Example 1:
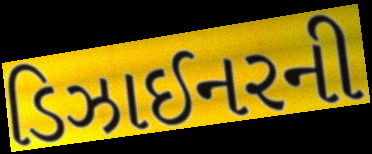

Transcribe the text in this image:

ડિઝાઈનરની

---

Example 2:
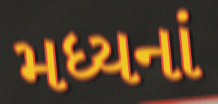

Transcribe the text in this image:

મધ્યનાં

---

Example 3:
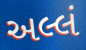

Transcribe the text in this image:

અલ્લં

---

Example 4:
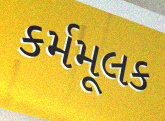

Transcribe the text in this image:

કર્મમૂલક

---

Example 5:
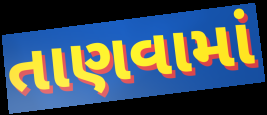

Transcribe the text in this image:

તાણવામાં